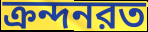
ক্রন্দনরত